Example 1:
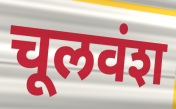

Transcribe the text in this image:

चूलवंश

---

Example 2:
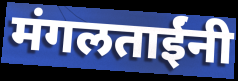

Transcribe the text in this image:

मंगलताईंनी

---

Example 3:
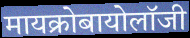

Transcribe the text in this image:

मायक्रोबायोलॉजी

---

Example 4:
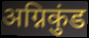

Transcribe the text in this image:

अग्निकुंड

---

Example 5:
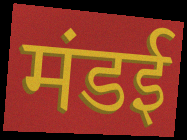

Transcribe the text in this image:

मंडई